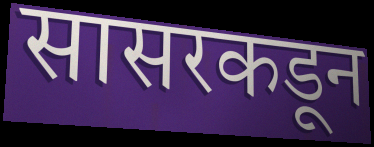
सासरकडून